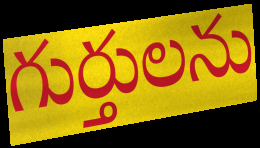
గుర్తులను